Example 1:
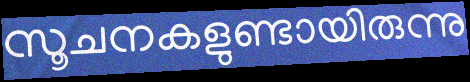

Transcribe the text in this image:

സൂചനകളുണ്ടായിരുന്നു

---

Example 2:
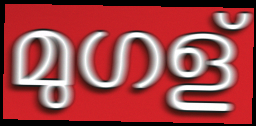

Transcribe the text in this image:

മുഗള്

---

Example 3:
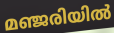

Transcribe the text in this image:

മഞ്ജരിയിൽ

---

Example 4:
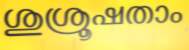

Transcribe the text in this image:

ശുശ്രൂഷതാം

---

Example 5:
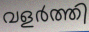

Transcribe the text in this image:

വളർത്തി